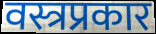
वस्त्रप्रकार